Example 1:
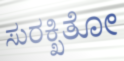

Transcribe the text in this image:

ಸುರಕ್ಖಿತೋ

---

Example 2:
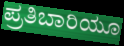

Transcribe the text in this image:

ಪ್ರತಿಬಾರಿಯೂ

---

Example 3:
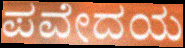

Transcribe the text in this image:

ಪವೇದಯ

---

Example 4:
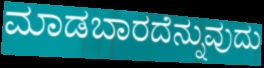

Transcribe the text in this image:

ಮಾಡಬಾರದೆನ್ನುವುದು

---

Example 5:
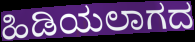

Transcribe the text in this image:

ಹಿಡಿಯಲಾಗದ